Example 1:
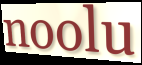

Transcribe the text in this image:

noolu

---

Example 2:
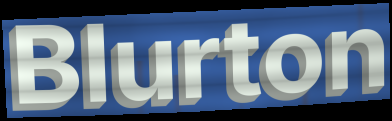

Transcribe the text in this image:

Blurton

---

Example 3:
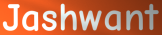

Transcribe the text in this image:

Jashwant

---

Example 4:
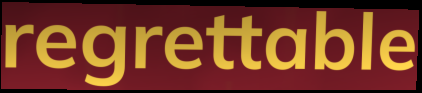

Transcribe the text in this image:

regrettable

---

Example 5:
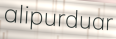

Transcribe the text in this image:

alipurduar